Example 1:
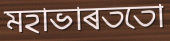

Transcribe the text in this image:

মহাভাৰততো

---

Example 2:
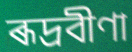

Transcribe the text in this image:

ৰূদ্ৰবীণা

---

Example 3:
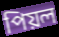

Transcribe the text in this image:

পিয়ল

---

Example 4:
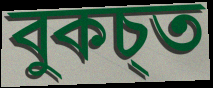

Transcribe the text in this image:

বুকচ্ত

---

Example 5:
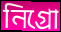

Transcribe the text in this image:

নিগ্ৰো